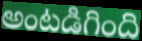
అంటడిగింది